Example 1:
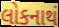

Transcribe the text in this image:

લોકનાથં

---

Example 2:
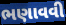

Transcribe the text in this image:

ભણાવવી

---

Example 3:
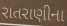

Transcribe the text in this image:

રાતરાણીના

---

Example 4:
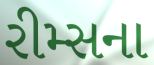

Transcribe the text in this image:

રીમ્સના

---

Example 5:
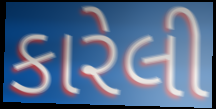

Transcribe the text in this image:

કારેલી